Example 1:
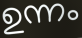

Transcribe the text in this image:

ഉന്നം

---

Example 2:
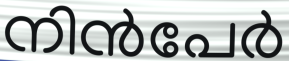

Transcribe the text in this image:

നിൻപേർ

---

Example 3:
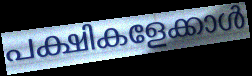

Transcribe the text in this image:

പക്ഷികളേക്കാൾ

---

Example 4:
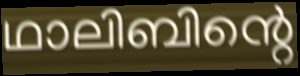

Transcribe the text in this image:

ഥാലിബിന്റെ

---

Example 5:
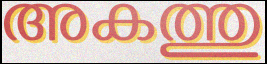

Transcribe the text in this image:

അകത്തു